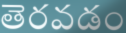
తెరవడం